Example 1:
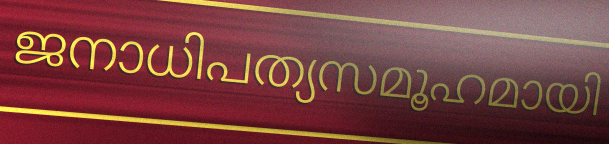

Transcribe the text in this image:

ജനാധിപത്യസമൂഹമായി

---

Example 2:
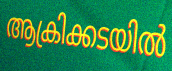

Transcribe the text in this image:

ആക്രിക്കടയിൽ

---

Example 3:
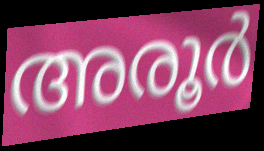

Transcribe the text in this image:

അരൂർ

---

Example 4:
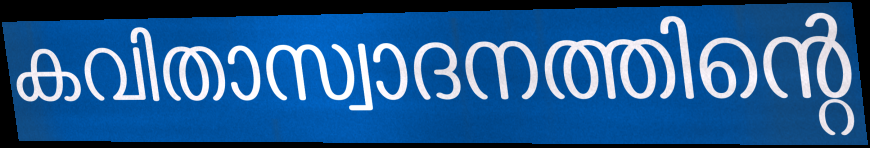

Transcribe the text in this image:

കവിതാസ്വാദനത്തിന്റെ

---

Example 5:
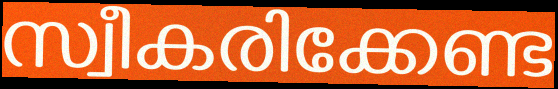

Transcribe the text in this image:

സ്വീകരിക്കേണ്ട